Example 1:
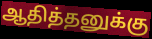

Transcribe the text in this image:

ஆதித்தனுக்கு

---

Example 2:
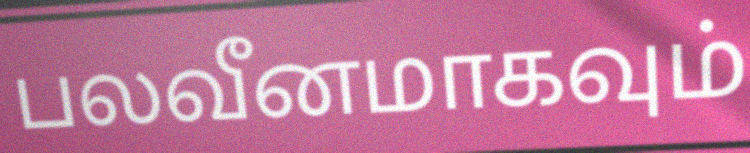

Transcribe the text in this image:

பலவீனமாகவும்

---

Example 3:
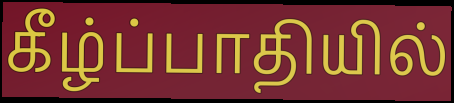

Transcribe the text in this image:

கீழ்ப்பாதியில்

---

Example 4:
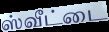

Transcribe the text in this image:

ஸ்வீட்டை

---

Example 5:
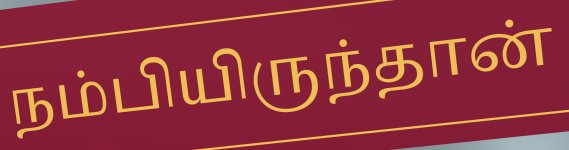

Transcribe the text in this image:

நம்பியிருந்தான்